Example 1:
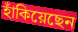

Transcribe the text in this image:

হাঁকিয়েছেন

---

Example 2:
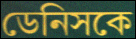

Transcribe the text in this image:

ডেনিসকে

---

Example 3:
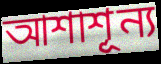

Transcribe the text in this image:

আশাশূন্য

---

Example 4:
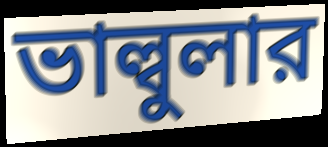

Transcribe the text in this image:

ভাল্বুলার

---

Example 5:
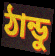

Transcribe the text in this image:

ঠান্ডু